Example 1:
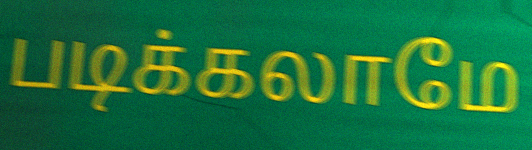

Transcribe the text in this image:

படிக்கலாமே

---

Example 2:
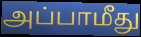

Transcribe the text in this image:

அப்பாமீது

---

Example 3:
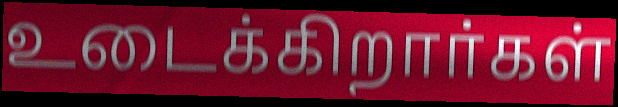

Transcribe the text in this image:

உடைக்கிறார்கள்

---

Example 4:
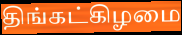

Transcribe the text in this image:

திங்கட்கிழமை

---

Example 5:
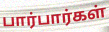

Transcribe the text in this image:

பார்பார்கள்